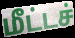
மீட்டச்